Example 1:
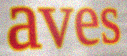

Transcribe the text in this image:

aves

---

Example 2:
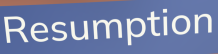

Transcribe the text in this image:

Resumption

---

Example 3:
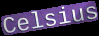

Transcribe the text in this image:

Celsius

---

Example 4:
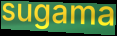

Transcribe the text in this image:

sugama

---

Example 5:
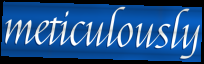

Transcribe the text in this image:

meticulously